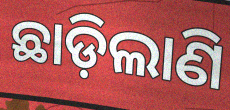
ଛାଡ଼ିଲାଣି